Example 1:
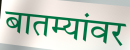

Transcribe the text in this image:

बातम्यांवर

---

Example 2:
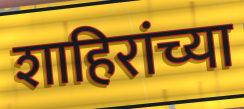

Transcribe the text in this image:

शाहिरांच्या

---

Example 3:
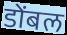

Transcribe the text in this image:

डोंबल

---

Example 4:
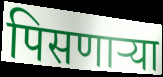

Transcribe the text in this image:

पिसणाऱ्या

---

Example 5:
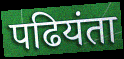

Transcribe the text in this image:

पढियंता